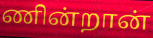
ணின்றான்